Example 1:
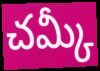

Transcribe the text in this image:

చమ్కీ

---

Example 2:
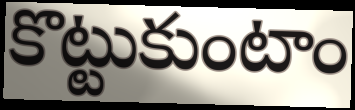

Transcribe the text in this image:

కొట్టుకుంటాం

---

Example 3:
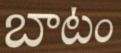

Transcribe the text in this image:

బాటం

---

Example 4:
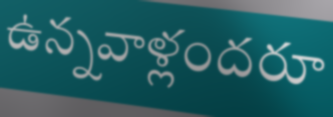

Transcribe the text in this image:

ఉన్నవాళ్లందరూ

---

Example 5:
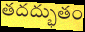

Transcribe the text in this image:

తదద్భుతం